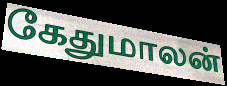
கேதுமாலன்